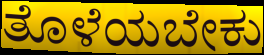
ತೊಳೆಯಬೇಕು